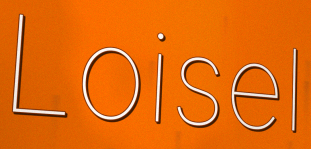
Loisel